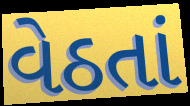
વેઠતાં